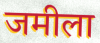
जमीला